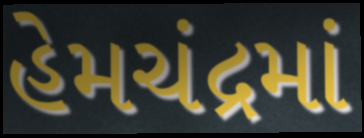
હેમચંદ્રમાં